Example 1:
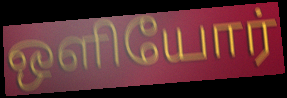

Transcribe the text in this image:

ஒளியோர்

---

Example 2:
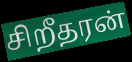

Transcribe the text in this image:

சிறீதரன்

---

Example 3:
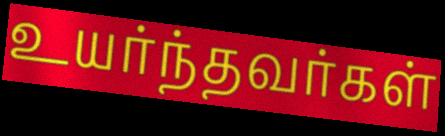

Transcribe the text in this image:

உயர்ந்தவர்கள்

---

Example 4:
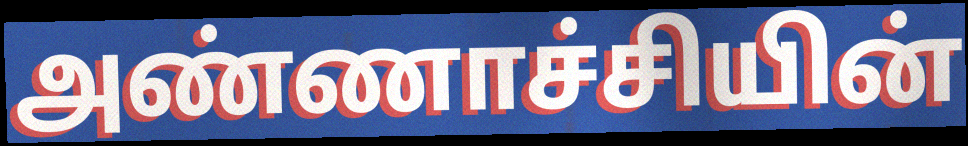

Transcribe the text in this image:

அண்ணாச்சியின்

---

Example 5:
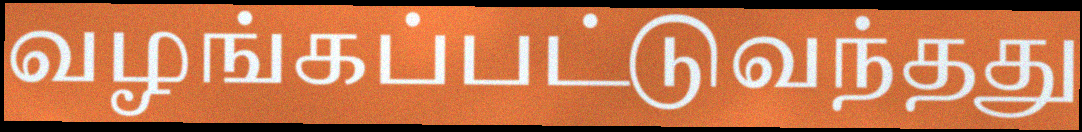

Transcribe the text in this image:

வழங்கப்பட்டுவந்தது